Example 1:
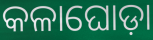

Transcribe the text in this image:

କଳାଘୋଡ଼ା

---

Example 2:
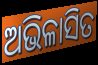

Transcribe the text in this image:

ଅଭିଳାସିତ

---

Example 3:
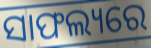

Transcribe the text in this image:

ସାଫଲ୍ୟରେ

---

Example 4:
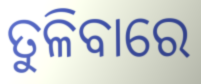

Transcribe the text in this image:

ତୁଳିବାରେ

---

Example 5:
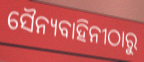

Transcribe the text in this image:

ସୈନ୍ୟବାହିନୀଠାରୁ